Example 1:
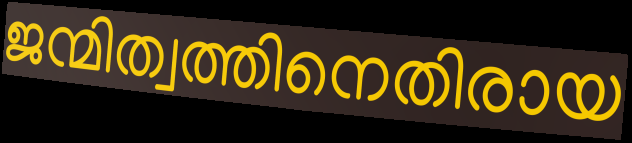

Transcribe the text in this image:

ജന്മിത്വത്തിനെതിരായ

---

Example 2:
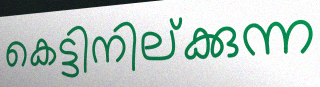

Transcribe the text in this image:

കെട്ടിനില്ക്കുന്ന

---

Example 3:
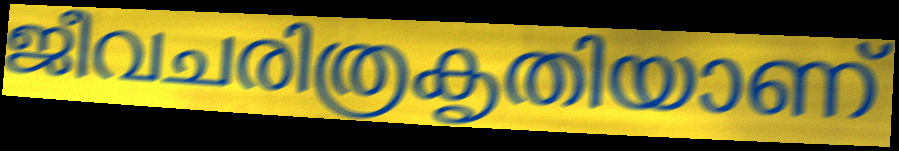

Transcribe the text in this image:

ജീവചരിത്രകൃതിയാണ്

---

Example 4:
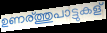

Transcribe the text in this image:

ഉണര്ത്തുപാട്ടുകള്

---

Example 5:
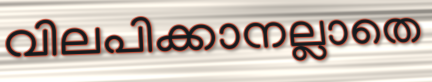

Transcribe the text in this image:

വിലപിക്കാനല്ലാതെ